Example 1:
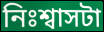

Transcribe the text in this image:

নিঃশ্বাসটা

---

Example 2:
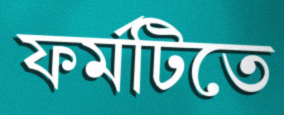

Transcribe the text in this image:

ফর্মটিতে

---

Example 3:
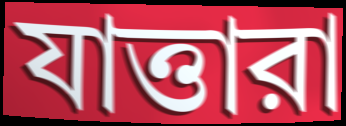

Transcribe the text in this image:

যাত্তারা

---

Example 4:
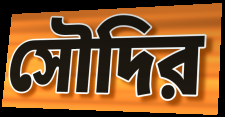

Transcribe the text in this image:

সৌদির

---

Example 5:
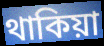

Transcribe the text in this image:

থাকিয়া